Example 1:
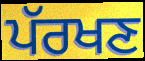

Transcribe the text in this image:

ਪੱਰਖਣ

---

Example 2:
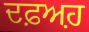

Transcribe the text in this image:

ਦਫ਼ਅ਼ਹ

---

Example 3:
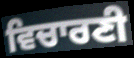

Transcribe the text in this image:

ਵਿਚਾਰਣੀ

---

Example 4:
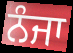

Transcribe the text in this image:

ਨੰਜਾ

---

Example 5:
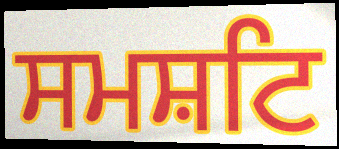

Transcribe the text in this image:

ਸਮਸ਼ਟਿ